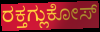
ರಕ್ತಗ್ಲುಕೋಸ್